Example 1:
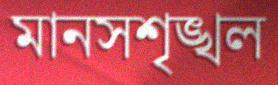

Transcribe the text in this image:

মানসশৃঙ্খল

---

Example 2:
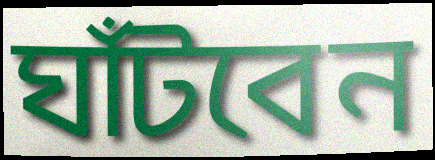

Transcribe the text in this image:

ঘাঁটবেন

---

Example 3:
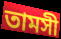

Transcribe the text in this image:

তামসী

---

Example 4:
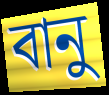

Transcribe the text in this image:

বানু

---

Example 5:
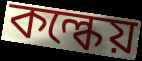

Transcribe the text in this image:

কল্কেয়